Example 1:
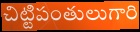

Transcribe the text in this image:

చిట్టిపంతులుగారి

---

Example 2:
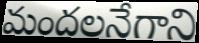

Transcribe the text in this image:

మందలనేగాని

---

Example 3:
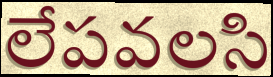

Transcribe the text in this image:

లేపవలసి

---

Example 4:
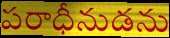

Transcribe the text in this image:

పరాధీనుడను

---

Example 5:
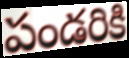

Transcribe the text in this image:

పండరికి